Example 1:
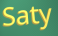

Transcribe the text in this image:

Saty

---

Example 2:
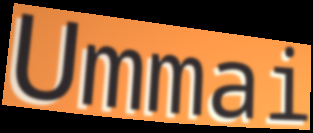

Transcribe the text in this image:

Ummai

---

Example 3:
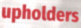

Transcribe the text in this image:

upholders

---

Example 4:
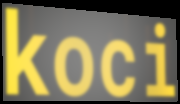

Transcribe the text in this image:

koci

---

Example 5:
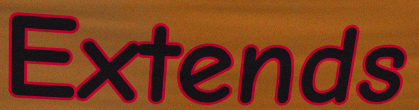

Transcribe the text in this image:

Extends